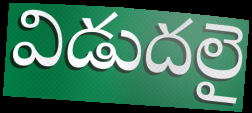
విడుదలై